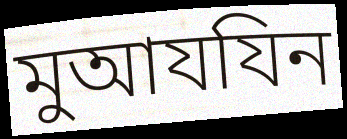
মুআযযিন